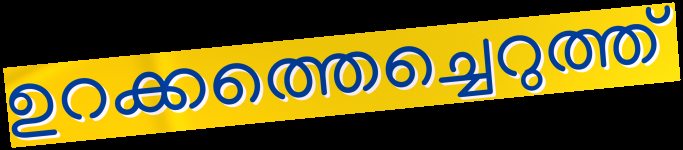
ഉറക്കത്തെച്ചെറുത്ത്